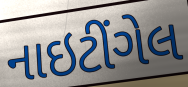
નાઇટીંગેલ